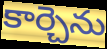
కార్చెను